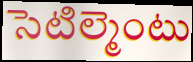
సెటిల్మెంటు